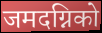
जमदग्निको